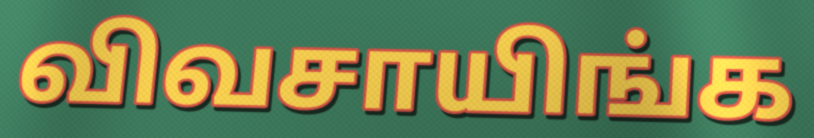
விவசாயிங்க